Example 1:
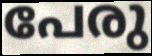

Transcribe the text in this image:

പേരു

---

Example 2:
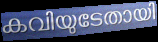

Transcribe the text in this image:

കവിയുടേതായി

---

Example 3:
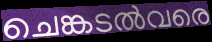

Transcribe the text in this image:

ചെങ്കടൽവരെ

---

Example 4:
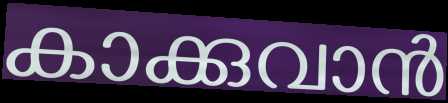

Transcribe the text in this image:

കാക്കുവാൻ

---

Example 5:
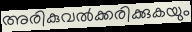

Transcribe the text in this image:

അരികുവൽക്കരിക്കുകയും